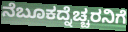
ನೆಬೂಕದ್ನೆಚ್ಚರನಿಗೆ